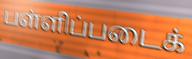
பள்ளிப்படைக்